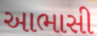
આભાસી